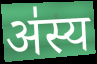
अ॑स्य